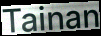
Tainan